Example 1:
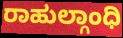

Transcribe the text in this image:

ರಾಹುಲ್ಗಾಂಧಿ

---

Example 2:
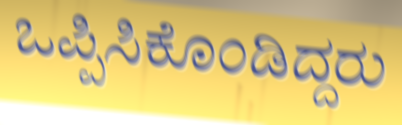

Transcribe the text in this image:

ಒಪ್ಪಿಸಿಕೊಂಡಿದ್ದರು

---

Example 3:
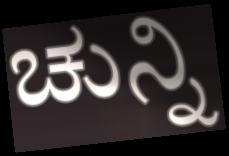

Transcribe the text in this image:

ಚುನ್ನಿ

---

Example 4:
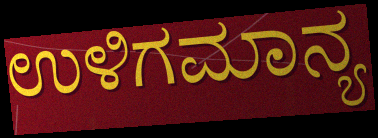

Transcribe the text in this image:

ಉಳಿಗಮಾನ್ಯ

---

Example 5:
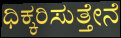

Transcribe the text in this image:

ಧಿಕ್ಕರಿಸುತ್ತೇನೆ